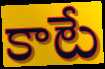
కాటే